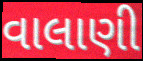
વાલાણી